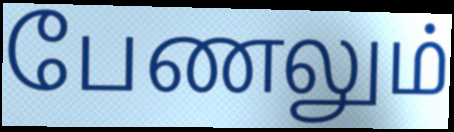
பேணலும்